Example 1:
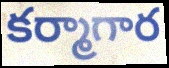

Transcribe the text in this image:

కర్మాగార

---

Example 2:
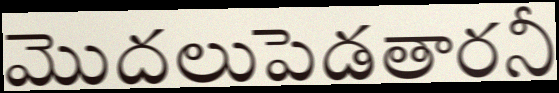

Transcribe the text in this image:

మొదలుపెడతారనీ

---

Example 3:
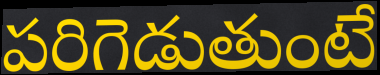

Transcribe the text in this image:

పరిగెడుతుంటే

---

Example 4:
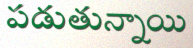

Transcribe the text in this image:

పడుతున్నాయి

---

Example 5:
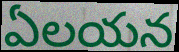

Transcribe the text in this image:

ఏలయన